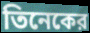
তিনেকের